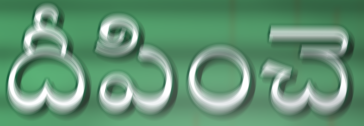
దీపించె